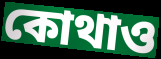
কোথাও